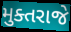
મુક્તરાજે